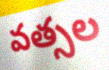
వత్సల